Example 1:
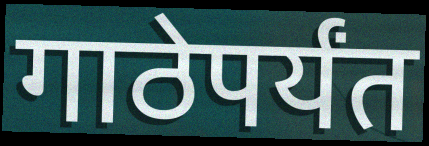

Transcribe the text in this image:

गाठेपर्यंत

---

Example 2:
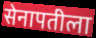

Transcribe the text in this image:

सेनापतीला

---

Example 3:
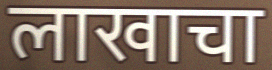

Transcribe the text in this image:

लाखाचा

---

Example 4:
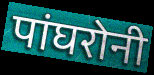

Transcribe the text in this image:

पांघरोनी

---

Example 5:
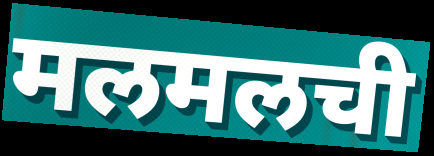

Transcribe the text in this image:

मलमलची